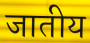
जातीय